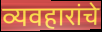
व्यवहारांचे